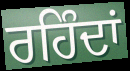
ਰਹਿੰਦਾਂ